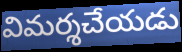
విమర్శచేయడు